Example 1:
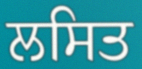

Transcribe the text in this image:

ਲਸਿਤ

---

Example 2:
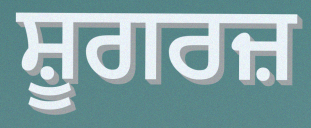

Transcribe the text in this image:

ਸ਼ੂਗਰਜ਼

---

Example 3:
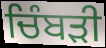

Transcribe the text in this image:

ਚਿੰਬੜੀ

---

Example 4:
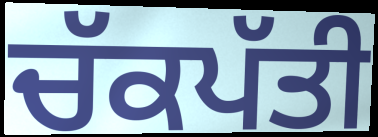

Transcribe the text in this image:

ਚੱਕਪੱਤੀ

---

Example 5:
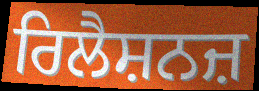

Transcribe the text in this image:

ਰਿਲੈਸ਼ਨਜ਼